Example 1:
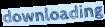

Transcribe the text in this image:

downloading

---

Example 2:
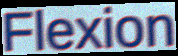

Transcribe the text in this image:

Flexion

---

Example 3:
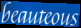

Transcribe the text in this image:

beauteous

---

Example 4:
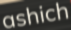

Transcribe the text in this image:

ashich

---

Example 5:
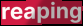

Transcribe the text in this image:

reaping